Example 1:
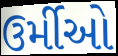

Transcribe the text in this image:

ઉર્મીઓ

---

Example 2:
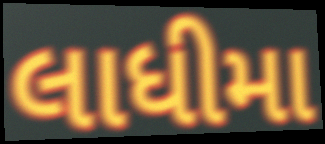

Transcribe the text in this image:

લાધીમા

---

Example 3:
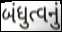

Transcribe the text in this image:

બંધુત્વનું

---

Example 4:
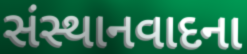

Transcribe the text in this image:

સંસ્થાનવાદના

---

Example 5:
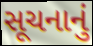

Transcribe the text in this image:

સૂચનાનું